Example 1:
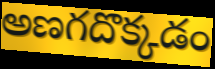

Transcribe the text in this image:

అణగదొక్కడం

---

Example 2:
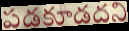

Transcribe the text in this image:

పడకూడదని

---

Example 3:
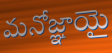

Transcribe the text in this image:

మనోజ్ఞాయై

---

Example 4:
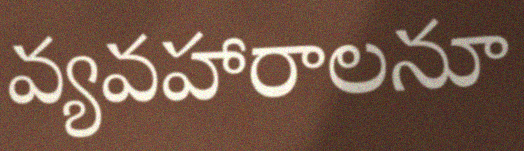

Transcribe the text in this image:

వ్యవహారాలనూ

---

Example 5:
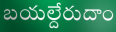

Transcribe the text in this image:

బయల్దేరుదాం